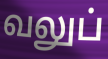
வலுப்